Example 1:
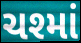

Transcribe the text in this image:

ચશ્માં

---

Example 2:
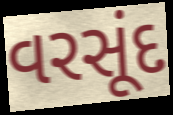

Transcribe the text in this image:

વરસૂંદ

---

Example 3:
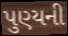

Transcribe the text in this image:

પુણ્યની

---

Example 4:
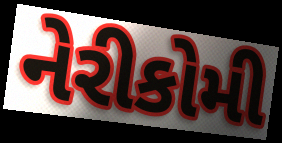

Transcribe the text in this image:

નેરીકોમી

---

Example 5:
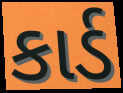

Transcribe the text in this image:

કાર્ડ